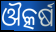
ଔତ୍କର୍ଷ